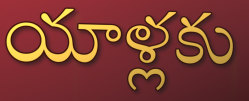
యాళ్లకు